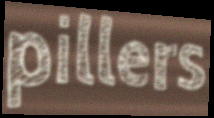
pillers